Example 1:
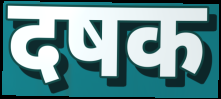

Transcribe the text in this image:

दषक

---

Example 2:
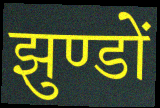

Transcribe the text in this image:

झुण्डों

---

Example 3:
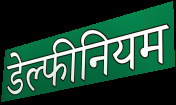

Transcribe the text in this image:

डेल्फीनियम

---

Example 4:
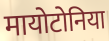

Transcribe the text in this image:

मायोटोनिया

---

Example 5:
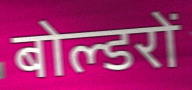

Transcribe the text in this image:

बोल्डरों